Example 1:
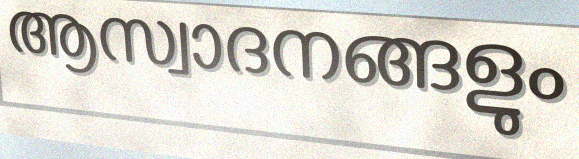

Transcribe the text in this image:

ആസ്വാദനങ്ങളും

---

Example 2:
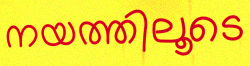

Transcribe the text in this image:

നയത്തിലൂടെ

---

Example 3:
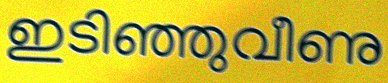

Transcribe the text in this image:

ഇടിഞ്ഞുവീണു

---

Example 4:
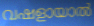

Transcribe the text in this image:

വഷളായാൽ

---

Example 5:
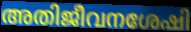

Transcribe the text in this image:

അതിജീവനശേഷി